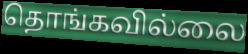
தொங்கவில்லை